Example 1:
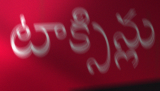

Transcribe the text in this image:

టాక్సిన్లు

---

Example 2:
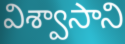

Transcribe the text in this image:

విశ్వాసాని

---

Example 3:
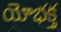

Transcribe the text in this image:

యోభక్త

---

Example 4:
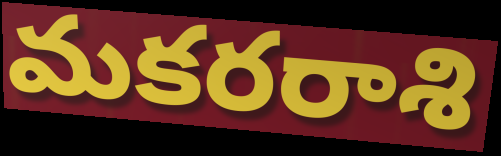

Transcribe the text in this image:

మకరరాశి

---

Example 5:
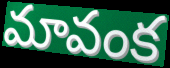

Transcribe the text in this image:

మావంక